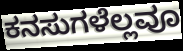
ಕನಸುಗಳೆಲ್ಲವೂ